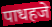
पाधहजे